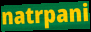
natrpani